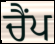
ਚੈਂਪ